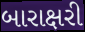
બારાક્ષરી